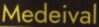
Medeival